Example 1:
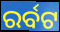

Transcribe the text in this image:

ରର୍ବଟ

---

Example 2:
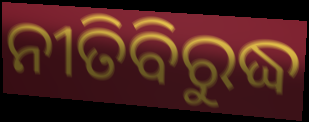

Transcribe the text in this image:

ନୀତିବିରୁଦ୍ଧ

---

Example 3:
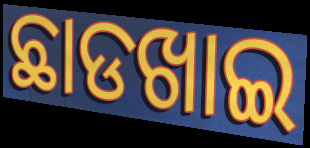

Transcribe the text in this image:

ଛାଡଖାଇ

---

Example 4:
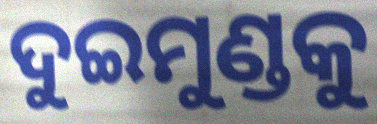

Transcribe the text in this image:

ଦୁଇମୁଣ୍ଡକୁ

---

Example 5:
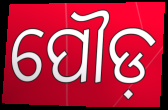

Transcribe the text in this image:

ପୌଡ଼